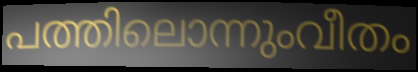
പത്തിലൊന്നുംവീതം